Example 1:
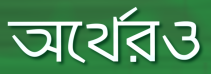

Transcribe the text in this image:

অর্থেরও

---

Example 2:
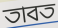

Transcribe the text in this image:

তাবত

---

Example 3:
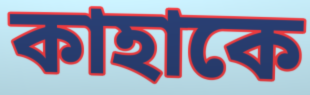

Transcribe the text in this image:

কাহাকে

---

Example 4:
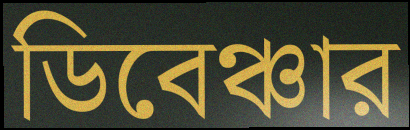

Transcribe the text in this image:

ডিবেঞ্চার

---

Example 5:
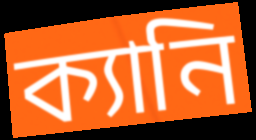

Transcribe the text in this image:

ক্যানি